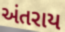
અંતરાય